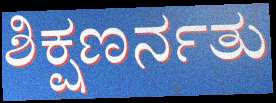
ಶಿಕ್ಷಣರ್ನತು